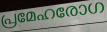
പ്രമേഹരോഗ